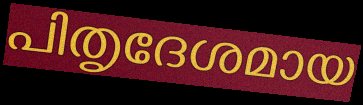
പിതൃദേശമായ